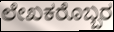
ಲೇಖಕರೊಬ್ಬರ